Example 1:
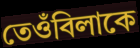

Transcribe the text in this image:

তেওঁবিলাকে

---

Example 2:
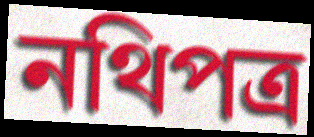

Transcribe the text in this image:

নথিপত্ৰ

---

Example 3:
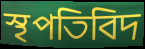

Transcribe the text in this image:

স্থপতিবিদ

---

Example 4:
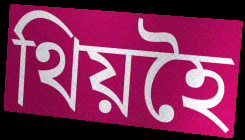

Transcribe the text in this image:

থিয়হৈ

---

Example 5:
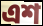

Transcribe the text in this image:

এশ